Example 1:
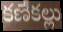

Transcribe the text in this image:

కణేకల్లు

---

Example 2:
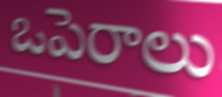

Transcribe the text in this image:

ఒపెరాలు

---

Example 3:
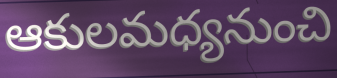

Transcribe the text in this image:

ఆకులమధ్యనుంచి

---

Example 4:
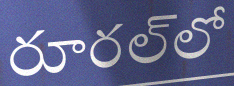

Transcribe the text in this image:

రూరల్‌లో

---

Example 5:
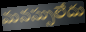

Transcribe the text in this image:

మనస్సులేదు